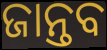
ଜାନ୍ତବ